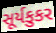
સૂર્યકુકર